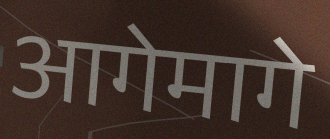
आगेमागे